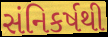
સંનિકર્ષથી